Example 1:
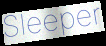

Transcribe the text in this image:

Sleeper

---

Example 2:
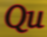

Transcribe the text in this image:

Qu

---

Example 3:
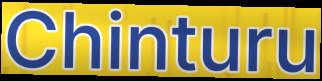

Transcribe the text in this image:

Chinturu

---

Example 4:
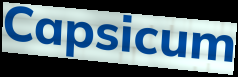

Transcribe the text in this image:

Capsicum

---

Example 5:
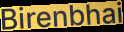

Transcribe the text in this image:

Birenbhai